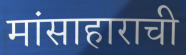
मांसाहाराची